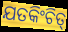
ଯତକିଂଚିତ୍